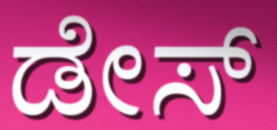
ಡೇಸ್